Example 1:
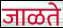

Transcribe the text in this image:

जाळते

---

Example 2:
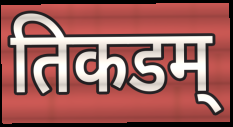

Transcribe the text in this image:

तिकडम्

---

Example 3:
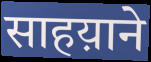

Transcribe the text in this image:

साहय़ाने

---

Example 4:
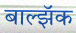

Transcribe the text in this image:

बाल्झॅक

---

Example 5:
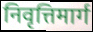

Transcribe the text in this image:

निवृत्तिमार्ग